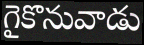
గైకొనువాడు